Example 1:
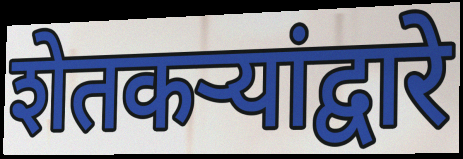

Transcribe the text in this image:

शेतकऱ्यांद्वारे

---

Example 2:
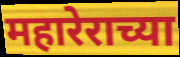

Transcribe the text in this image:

महारेराच्या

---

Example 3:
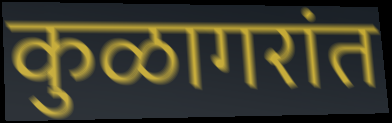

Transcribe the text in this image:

कुळागरांत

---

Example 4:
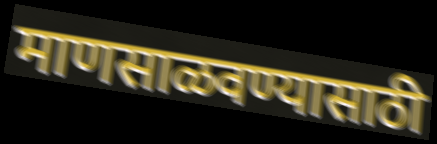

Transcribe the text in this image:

माणसाळवण्यासाठी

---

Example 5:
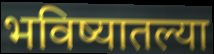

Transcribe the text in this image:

भविष्यातल्या